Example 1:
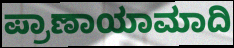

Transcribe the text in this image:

ಪ್ರಾಣಾಯಾಮಾದಿ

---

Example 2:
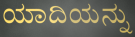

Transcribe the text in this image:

ಯಾದಿಯನ್ನು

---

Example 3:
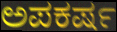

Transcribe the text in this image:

ಅಪಕರ್ಷ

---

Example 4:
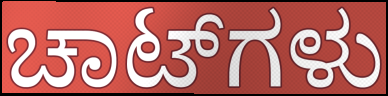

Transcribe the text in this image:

ಚಾಟ್‌ಗಳು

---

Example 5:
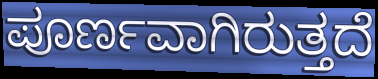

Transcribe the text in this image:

ಪೂರ್ಣವಾಗಿರುತ್ತದೆ